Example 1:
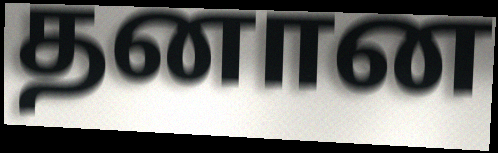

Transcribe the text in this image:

தனான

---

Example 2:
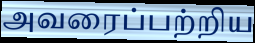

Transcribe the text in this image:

அவரைப்பற்றிய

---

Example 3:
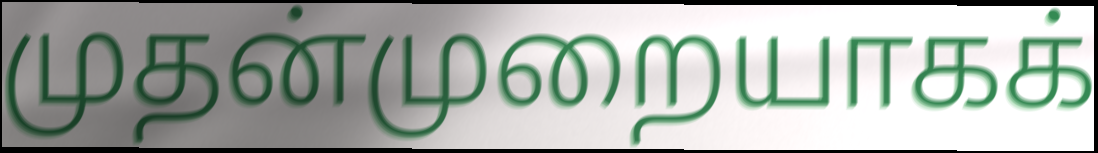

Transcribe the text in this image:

முதன்முறையாகக்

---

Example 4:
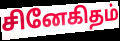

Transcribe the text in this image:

சினேகிதம்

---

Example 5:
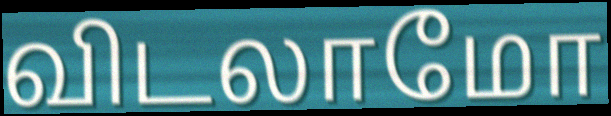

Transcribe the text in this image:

விடலாமோ